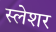
स्लेशर